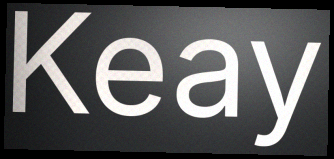
Keay